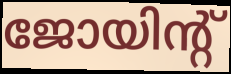
ജോയിന്റ്